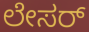
ಲೇಸರ್